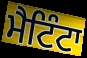
ਮੈਟਿੰਟਾ